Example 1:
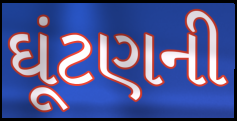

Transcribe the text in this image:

ઘૂંટણની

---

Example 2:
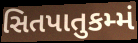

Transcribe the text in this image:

સિતપાતુકમ્મં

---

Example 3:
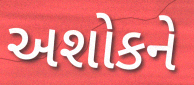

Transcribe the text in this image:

અશોકને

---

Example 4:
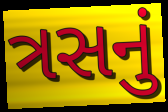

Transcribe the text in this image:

ત્રસનું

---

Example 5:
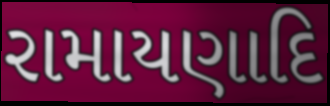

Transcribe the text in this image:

રામાયણાદિ